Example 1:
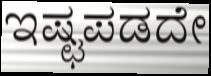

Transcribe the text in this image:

ಇಷ್ಟಪಡದೇ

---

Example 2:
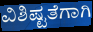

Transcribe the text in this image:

ವಿಶಿಷ್ಟತೆಗಾಗಿ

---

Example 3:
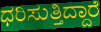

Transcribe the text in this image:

ಧರಿಸುತ್ತಿದ್ದಾರೆ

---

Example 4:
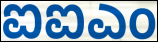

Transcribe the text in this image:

ಐಐಎಂ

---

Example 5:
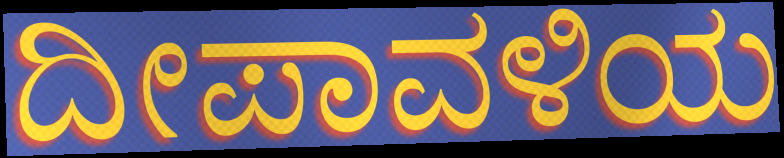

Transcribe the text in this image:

ದೀಪಾವಳಿಯ